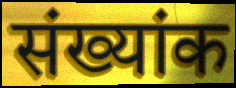
संख्यांक